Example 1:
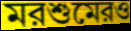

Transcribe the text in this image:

মরশুমেরও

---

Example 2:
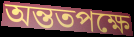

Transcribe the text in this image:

অন্ততপক্ষে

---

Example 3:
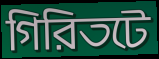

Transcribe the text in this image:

গিরিতটে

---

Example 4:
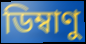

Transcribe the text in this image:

ডিম্বাণু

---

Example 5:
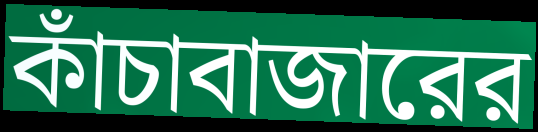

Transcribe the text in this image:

কাঁচাবাজারের